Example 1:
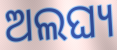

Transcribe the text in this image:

ଅଲଘ୍ୟ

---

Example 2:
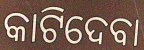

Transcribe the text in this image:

କାଟିଦେବା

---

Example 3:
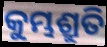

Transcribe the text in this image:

କୁମ୍ଭଶ୍ରୁତି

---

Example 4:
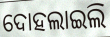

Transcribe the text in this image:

ଦୋହଲାଇଲି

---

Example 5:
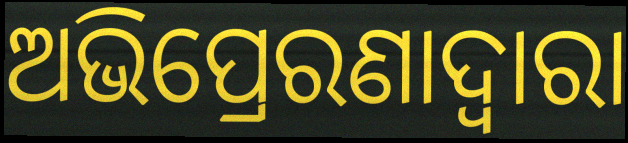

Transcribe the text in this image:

ଅଭିପ୍ରେରଣାଦ୍ୱାରା